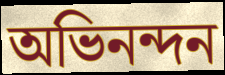
অভিনন্দন